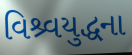
વિશ્ર્વયુદ્ધના